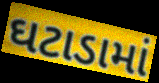
ઘટાડામાં